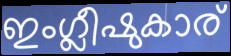
ഇംഗ്ലീഷുകാര്